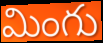
మింగు